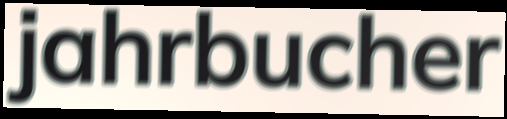
jahrbucher